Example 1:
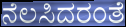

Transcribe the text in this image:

ನೆಲಸಿದರಂತೆ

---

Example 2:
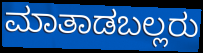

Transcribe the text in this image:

ಮಾತಾಡಬಲ್ಲರು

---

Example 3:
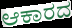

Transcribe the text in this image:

ಆಕಾರದ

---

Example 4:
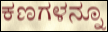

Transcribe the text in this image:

ಕಣಗಳನ್ನೂ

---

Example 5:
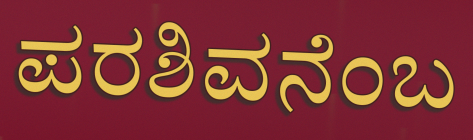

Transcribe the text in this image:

ಪರಶಿವನೆಂಬ